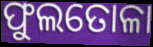
ଫୁଲତୋଳା